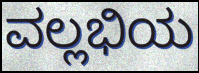
ವಲ್ಲಭಿಯ